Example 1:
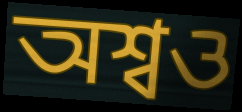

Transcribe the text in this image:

অশ্বও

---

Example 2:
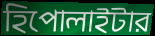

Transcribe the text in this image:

হিপোলাইটার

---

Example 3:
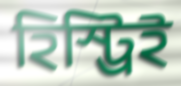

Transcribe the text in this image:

হিস্ট্রিই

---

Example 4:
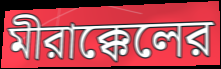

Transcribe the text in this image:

মীরাক্কেলের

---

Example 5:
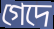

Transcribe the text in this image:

গেদে